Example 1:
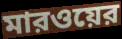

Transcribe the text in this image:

মারওয়ের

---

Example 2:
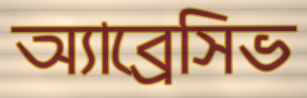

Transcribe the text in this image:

অ্যাব্রেসিভ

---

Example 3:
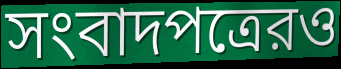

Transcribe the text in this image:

সংবাদপত্রেরও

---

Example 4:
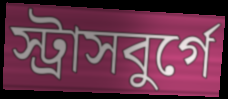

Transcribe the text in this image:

স্ট্রাসবুর্গে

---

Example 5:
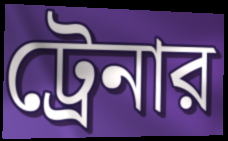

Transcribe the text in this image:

ট্রেনার